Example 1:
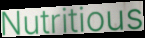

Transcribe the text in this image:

Nutritious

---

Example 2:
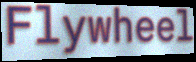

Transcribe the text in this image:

Flywheel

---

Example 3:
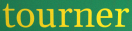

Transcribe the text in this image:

tourner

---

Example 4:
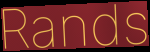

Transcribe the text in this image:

Rands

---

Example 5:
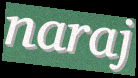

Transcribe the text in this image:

naraj